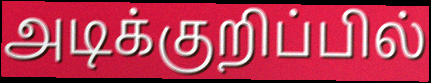
அடிக்குறிப்பில்